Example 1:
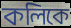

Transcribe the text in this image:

কলিকে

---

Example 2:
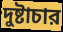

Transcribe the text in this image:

দুষ্টাচার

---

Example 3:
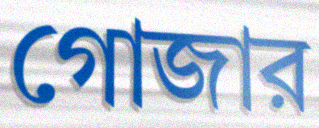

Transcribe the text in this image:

গোজার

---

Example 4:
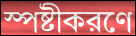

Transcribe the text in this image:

স্পষ্টীকরণে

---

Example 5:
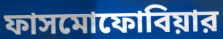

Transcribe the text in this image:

ফাসমোফোবিয়ার